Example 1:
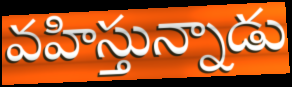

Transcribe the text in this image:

వహిస్తున్నాడు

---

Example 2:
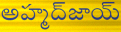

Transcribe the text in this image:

అహ్మద్‌జాయ్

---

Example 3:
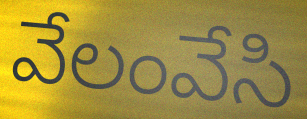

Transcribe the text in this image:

వేలంవేసి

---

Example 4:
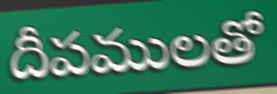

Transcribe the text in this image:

దీపములతో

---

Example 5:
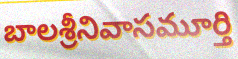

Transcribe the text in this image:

బాలశ్రీనివాసమూర్తి